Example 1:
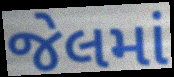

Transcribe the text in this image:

જેલમાં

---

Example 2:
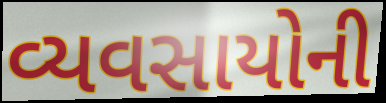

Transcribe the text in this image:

વ્યવસાયોની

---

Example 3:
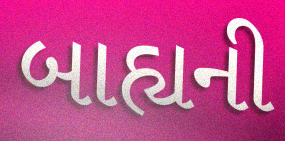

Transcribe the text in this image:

બાહ્યની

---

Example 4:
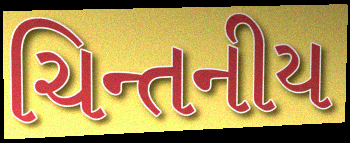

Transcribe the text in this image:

ચિન્તનીય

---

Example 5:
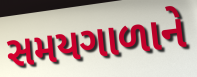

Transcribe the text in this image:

સમયગાળાને